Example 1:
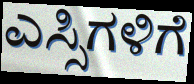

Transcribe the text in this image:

ಎಸ್ಸಿಗಳಿಗೆ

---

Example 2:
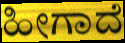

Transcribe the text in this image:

ಹೀಗಾದೆ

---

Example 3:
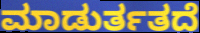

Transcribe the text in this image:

ಮಾಡುರ್ತತದೆ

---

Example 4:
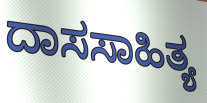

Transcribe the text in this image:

ದಾಸಸಾಹಿತ್ಯ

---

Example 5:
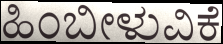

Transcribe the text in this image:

ಹಿಂಬೀಳುವಿಕೆ